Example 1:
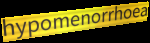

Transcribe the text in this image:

hypomenorrhoea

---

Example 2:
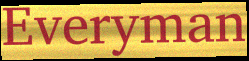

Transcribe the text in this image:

Everyman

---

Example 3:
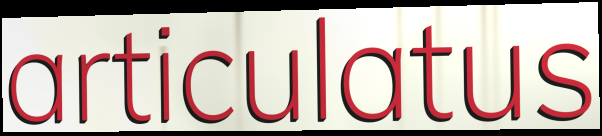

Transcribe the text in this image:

articulatus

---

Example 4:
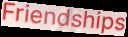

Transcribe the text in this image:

Friendships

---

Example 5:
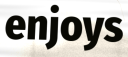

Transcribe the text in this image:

enjoys